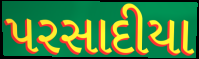
પરસાદીયા